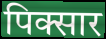
पिक्सार